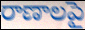
రాణాలపై